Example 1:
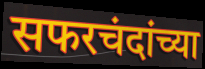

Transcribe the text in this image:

सफरचंदांच्या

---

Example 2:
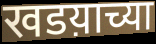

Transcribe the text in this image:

खडय़ाच्या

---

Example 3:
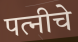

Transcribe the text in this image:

पत्‍नीचे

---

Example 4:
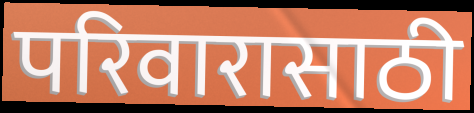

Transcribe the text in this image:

परिवारासाठी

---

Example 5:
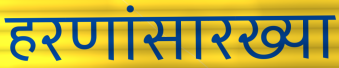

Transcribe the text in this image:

हरणांसारख्या